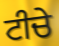
ਟੀਚੇ